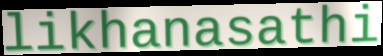
likhanasathi